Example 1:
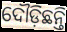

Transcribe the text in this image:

ଦୌଡ଼ିଛନ୍ତି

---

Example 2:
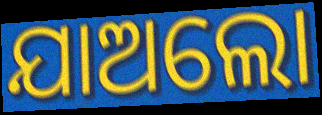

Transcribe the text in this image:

ଯାଅଲୋ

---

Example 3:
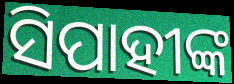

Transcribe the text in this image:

ସିପାହୀଙ୍କ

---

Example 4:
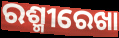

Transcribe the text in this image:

ରଶ୍ମୀରେଖା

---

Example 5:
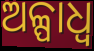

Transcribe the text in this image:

ଅଳ୍ପାଧ୍ଵ